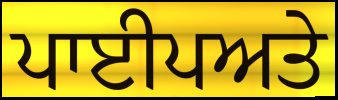
ਪਾਈਪਅਤੇ